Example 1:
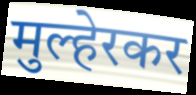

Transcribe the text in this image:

मुल्हेरकर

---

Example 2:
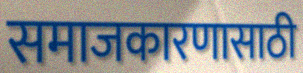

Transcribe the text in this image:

समाजकारणासाठी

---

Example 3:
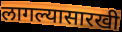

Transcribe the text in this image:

लागल्यासारखी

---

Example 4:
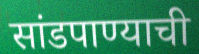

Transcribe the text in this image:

सांडपाण्याची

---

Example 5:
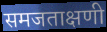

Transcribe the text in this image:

समजताक्षणी